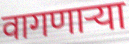
वागणाऱ्या